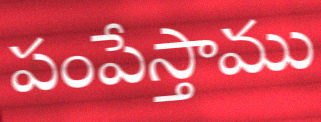
పంపేస్తాము